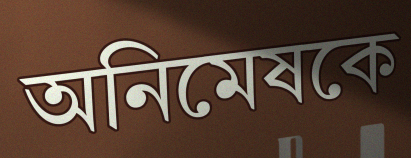
অনিমেষকে